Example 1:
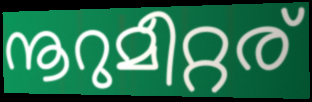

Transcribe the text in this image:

നൂറുമീറ്റര്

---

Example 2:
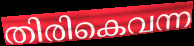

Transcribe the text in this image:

തിരികെവന്ന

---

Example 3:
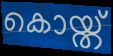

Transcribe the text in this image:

കൊയ്ത്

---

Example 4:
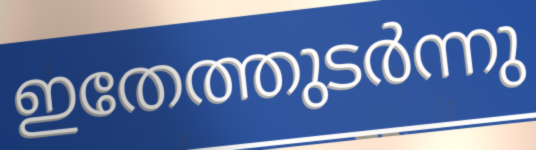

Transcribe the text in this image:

ഇതേത്തുടർന്നു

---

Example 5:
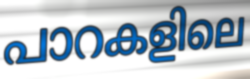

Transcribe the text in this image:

പാറകളിലെ